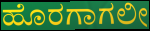
ಹೊರಗಾಗಲೀ